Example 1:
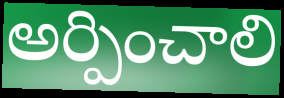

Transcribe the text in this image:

అర్పించాలి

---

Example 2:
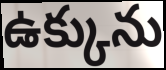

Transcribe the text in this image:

ఉక్కును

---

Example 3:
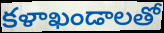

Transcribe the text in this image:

కళాఖండాలతో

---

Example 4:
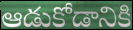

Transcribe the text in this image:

ఆడుకోడానికి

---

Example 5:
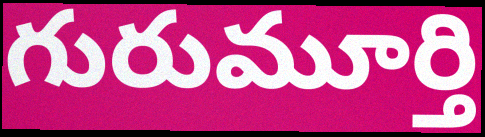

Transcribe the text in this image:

గురుమూర్తి